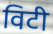
विटी